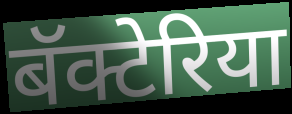
बॅक्टेरिया